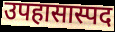
उपहासास्पद